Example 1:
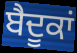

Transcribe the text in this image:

ਬੈਦੂਕਾਂ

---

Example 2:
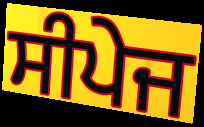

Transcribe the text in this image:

ਸੀਪੇਜ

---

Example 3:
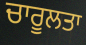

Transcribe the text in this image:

ਚਾਰੂਲਤਾ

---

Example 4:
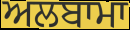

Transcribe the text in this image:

ਅਲਬਾਮਾ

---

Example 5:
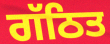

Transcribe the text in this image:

ਗੱਠਿਤ